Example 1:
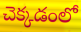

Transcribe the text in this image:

చెక్కడంలో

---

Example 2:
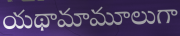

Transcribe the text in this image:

యథామామూలుగా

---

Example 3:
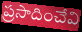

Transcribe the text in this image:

ప్రసాదించేవి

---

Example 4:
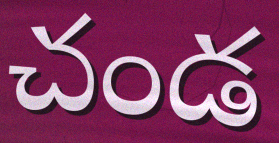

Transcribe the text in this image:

చండ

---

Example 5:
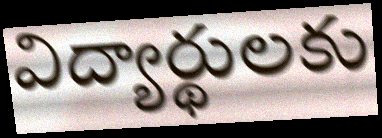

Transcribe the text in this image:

విద్యార్థులకు